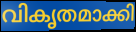
വികൃതമാക്കി